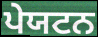
ਪੇਯਟਨ